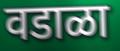
वडाळा